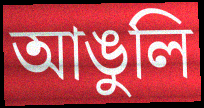
আঙুলি